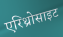
एरिथ्रोसाइट